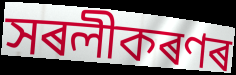
সৰলীকৰণৰ